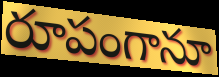
రూపంగానూ